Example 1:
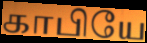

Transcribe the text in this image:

காபியே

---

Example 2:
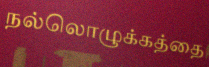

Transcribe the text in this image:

நல்லொழுக்கத்தை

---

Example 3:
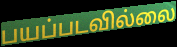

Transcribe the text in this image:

பயப்படவில்லை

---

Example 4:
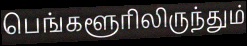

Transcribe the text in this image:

பெங்களூரிலிருந்தும்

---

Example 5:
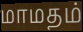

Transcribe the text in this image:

மாமதம்